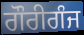
ਗੌਰੀਗੰਜ